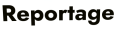
Reportage